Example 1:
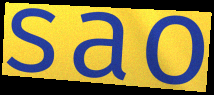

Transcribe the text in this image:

sao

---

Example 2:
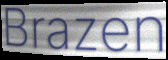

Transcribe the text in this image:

Brazen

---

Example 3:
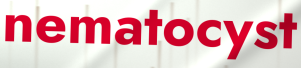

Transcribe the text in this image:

nematocyst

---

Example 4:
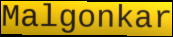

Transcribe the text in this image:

Malgonkar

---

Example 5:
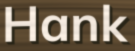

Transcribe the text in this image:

Hank